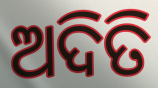
ଅଦିତି